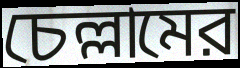
চেল্লামের